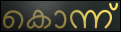
കൊന്ന്